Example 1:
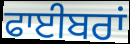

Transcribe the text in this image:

ਫਾਈਬਰਾਂ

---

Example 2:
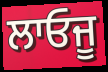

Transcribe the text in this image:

ਲਾਓਜੂ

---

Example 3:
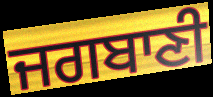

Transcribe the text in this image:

ਜਗਬਾਣੀ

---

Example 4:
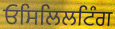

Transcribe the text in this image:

ਓਸਿਲਿਲਟਿੰਗ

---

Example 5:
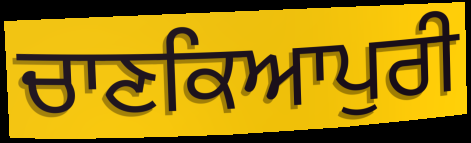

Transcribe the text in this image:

ਚਾਣਕਿਆਪੁਰੀ